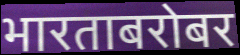
भारताबरोबर